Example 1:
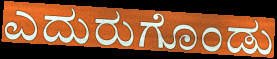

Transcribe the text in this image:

ಎದುರುಗೊಂಡು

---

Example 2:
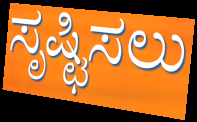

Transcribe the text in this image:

ಸೃಷ್ಟಿಸಲು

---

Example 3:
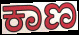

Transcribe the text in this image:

ಕಾಣ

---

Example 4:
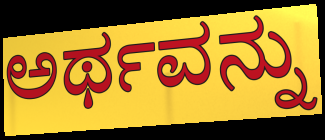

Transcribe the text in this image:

ಅರ್ಥವನ್ನು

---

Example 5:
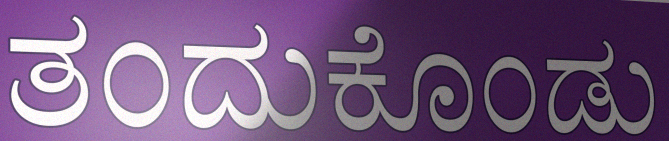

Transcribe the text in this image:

ತಂದುಕೊಂಡು